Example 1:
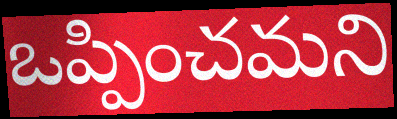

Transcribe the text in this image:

ఒప్పించమని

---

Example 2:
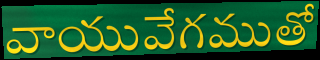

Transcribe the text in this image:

వాయువేగముతో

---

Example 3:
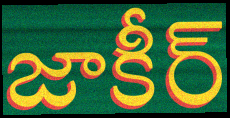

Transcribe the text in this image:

జాకీర్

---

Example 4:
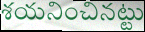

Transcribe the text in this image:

శయనించినట్టు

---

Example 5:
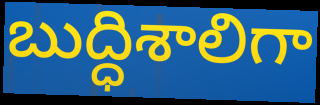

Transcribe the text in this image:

బుద్ధిశాలిగా